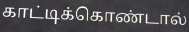
காட்டிக்கொண்டால்